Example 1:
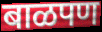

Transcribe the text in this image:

बाळपण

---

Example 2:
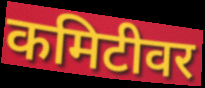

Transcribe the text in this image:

कमिटीवर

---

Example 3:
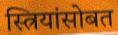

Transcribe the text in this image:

स्त्रियांसोबत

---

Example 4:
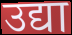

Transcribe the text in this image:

उद्या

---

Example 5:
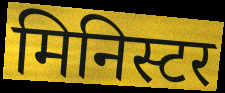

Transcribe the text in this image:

मिनिस्टर